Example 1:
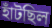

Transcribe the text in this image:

হাঁটছিল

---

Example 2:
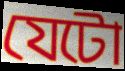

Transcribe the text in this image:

যেটো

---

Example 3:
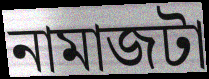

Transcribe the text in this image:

নামাজটা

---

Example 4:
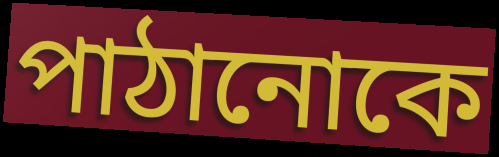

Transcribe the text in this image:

পাঠানোকে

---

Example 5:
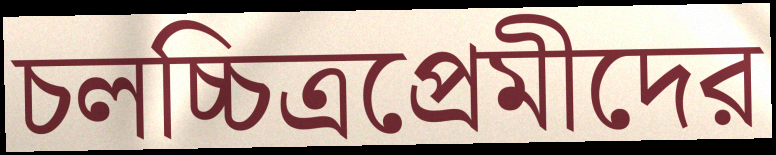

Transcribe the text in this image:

চলচ্চিত্রপ্রেমীদের